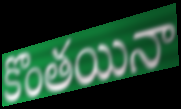
కొంతయినా